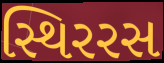
સ્થિરરસ